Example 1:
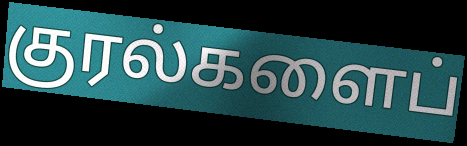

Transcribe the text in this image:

குரல்களைப்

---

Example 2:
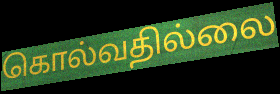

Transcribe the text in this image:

கொல்வதில்லை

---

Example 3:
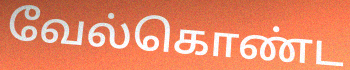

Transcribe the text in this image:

வேல்கொண்ட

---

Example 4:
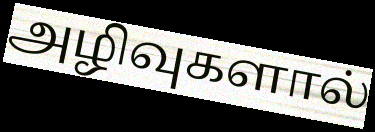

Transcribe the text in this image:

அழிவுகளால்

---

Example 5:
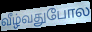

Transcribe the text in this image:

வீழ்வதுபோல